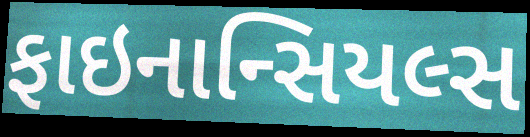
ફાઇનાન્સિયલ્સ